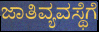
ಜಾತಿವ್ಯವಸ್ಥೆಗೆ